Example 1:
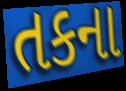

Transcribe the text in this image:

તકના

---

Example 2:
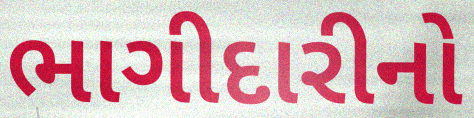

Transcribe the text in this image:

ભાગીદારીનો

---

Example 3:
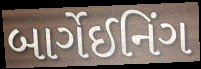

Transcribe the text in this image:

બાર્ગેઈનિંગ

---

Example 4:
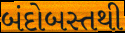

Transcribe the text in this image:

બંદોબસ્તથી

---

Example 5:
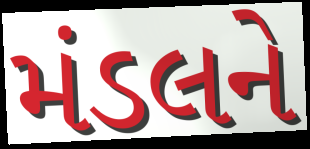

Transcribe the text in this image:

મંડલને